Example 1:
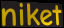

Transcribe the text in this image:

niket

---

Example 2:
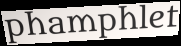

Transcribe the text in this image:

phamphlet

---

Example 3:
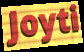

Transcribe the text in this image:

Joyti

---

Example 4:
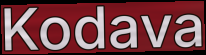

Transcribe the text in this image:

Kodava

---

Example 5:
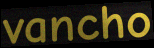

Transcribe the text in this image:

vancho